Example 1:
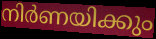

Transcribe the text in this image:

നിർണയിക്കും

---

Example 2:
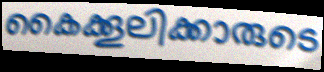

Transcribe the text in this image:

കൈക്കൂലിക്കാരുടെ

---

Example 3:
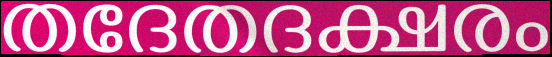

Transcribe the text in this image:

തദേതദക്ഷരം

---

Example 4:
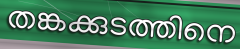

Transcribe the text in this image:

തങ്കക്കുടത്തിനെ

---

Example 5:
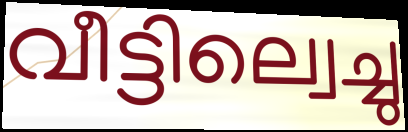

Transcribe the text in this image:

വീട്ടില്വെച്ചു